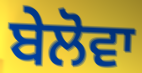
ਬੇਲੋਵਾ